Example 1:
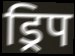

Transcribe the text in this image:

ड्रिप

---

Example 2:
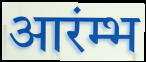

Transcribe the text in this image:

आरंम्भ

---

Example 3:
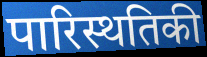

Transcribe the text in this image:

पारिस्थतिकी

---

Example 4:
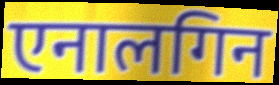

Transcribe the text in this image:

एनालगिन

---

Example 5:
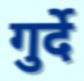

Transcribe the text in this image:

गुर्दे